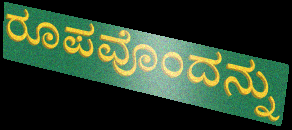
ರೂಪವೊಂದನ್ನು